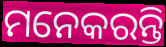
ମନେକରନ୍ତି